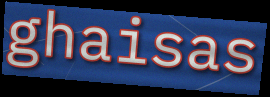
ghaisas